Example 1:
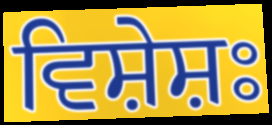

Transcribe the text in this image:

ਵਿਸ਼ੇਸ਼ਃ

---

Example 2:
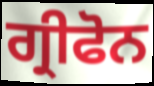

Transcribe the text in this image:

ਗ੍ਰੀਫੋਨ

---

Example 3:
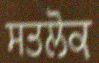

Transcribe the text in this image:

ਸਤਲੋਕ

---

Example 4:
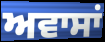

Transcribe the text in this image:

ਅਵਾਸਾਂ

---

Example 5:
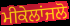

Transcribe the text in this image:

ਮੀਕੇਲਾਂਜਲੋ